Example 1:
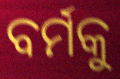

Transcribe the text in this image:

ବର୍ମକୁ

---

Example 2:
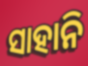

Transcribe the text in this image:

ସାହାନି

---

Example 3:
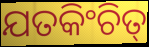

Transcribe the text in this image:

ଯତକିଂଚିତ୍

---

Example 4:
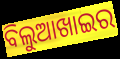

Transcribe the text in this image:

ବିଲୁଆଖାଇର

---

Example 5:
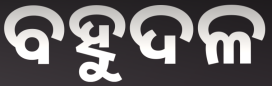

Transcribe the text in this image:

ବହୁଦଳ